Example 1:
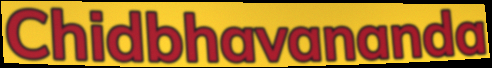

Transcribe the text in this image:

Chidbhavananda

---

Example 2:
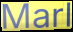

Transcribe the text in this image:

Marl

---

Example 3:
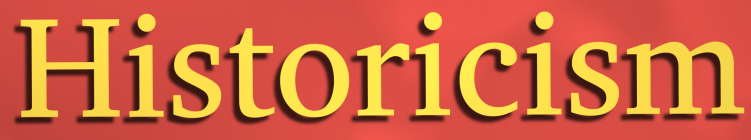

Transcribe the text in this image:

Historicism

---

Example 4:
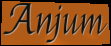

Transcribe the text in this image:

Anjum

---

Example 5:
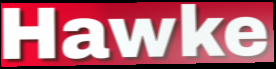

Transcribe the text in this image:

Hawke